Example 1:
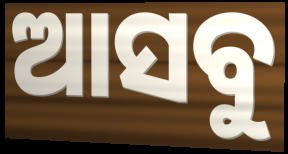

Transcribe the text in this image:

ଆସବୁ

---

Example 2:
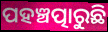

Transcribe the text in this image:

ପହଞ୍ଚତ୍ପାରୁଛି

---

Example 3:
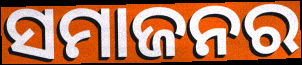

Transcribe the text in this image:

ସମାଜନର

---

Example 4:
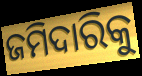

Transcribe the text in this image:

ଜମିଦାରିକୁ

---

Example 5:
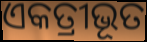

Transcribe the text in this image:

ଏକତ୍ରୀଭୂତ